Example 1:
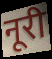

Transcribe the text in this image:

नूरी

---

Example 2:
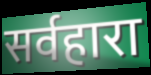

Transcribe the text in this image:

सर्वहारा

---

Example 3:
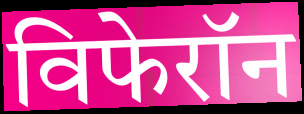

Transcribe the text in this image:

विफेरॉन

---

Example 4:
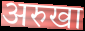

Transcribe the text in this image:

अरुखा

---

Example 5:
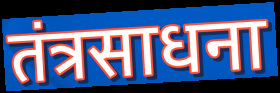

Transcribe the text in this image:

तंत्रसाधना